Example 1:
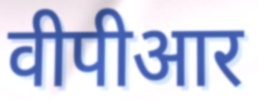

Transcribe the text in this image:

वीपीआर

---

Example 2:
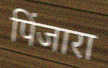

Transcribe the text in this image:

पिंजारा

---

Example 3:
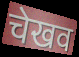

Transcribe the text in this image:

चेखव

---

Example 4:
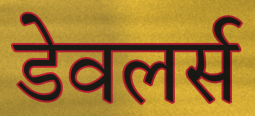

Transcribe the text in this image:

डेवलर्स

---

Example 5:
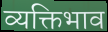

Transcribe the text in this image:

व्यक्तिभाव